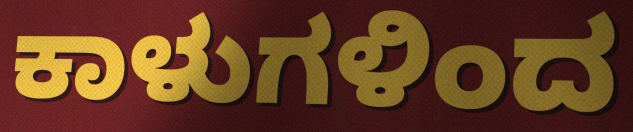
ಕಾಳುಗಳಿಂದ